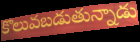
కొలువబడుతున్నాడు